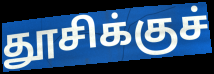
தூசிக்குச்